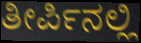
ತೀರ್ಪಿನಲ್ಲಿ